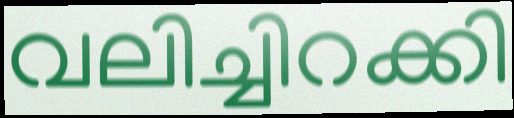
വലിച്ചിറക്കി